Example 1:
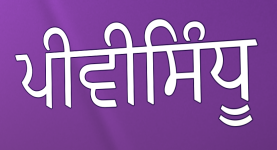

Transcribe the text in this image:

ਪੀਵੀਸਿੰਧੂ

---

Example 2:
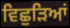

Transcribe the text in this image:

ਵਿਛੁੜਿਆਂ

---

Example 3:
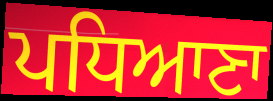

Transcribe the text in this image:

ਪਧਿਆਣਾ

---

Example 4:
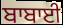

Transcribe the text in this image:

ਬਾਬਾਈ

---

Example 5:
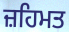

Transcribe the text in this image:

ਜ਼ਹਿਮਤ